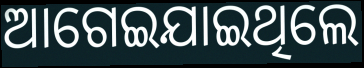
ଆଗେଇଯାଇଥିଲେ